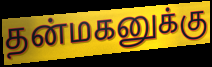
தன்மகனுக்கு